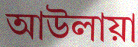
আউলায়া